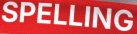
SPELLING